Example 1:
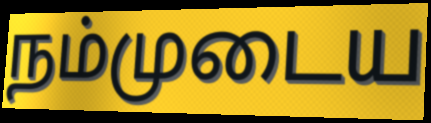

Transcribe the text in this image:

நம்முடைய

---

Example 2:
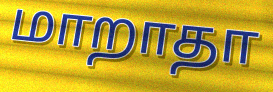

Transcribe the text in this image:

மாறாதா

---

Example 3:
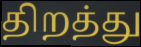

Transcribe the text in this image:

திறத்து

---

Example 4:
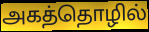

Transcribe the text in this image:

அகத்தொழில்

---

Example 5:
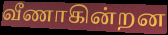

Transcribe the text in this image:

வீணாகின்றன